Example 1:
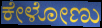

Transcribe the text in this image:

ಕೇಳೋಣು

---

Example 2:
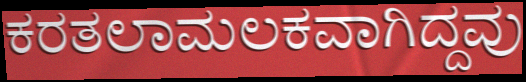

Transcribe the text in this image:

ಕರತಲಾಮಲಕವಾಗಿದ್ದವು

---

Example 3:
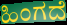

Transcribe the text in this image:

ಹಿಂಗದೆ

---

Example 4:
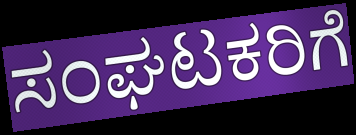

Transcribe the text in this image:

ಸಂಘಟಕರಿಗೆ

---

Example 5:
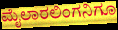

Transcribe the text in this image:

ಮೈಲಾರಲಿಂಗನಿಗೂ